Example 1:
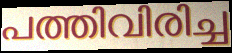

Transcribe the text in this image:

പത്തിവിരിച്ച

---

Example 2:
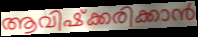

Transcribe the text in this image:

ആവിഷ്‌ക്കരിക്കാൻ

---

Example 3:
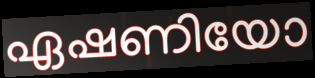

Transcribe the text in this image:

ഏഷണിയോ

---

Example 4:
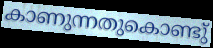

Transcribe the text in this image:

കാണുന്നതുകൊണ്ടു്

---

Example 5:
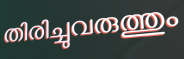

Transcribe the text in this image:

തിരിച്ചുവരുത്തും